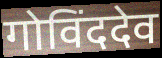
गोविंददेव